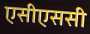
एसीएससी